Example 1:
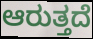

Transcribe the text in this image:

ಆರುತ್ತದೆ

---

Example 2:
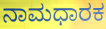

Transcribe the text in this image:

ನಾಮಧಾರಕ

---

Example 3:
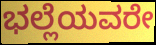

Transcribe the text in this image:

ಭಲ್ಲೆಯವರೇ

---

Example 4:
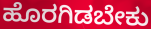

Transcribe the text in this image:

ಹೊರಗಿಡಬೇಕು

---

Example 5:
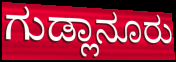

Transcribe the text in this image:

ಗುಡ್ಲಾನೂರು